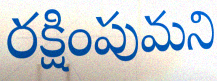
రక్షింపుమని